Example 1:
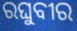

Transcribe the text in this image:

ରଘୁବୀର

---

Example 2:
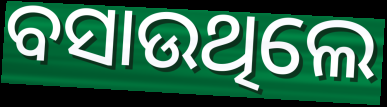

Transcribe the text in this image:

ବସାଉଥିଲେ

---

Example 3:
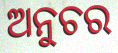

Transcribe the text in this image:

ଅନୁଚର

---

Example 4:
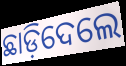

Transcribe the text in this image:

ଛାଡ଼ିଦେଲେ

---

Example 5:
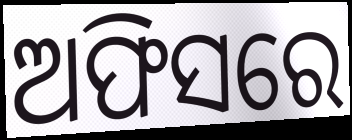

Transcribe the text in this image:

ଅଫିସରେ